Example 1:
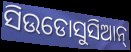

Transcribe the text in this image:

ସିଉଡୋସୁସିଆନ୍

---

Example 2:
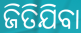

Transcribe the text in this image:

ଜିତିଯିବା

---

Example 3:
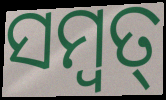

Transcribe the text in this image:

ସମ୍ବତ୍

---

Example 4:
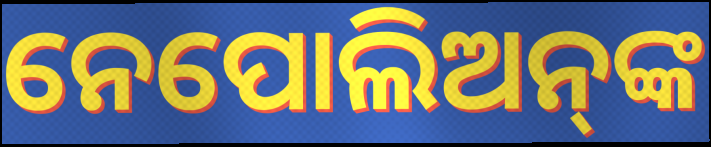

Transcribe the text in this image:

ନେପୋଲିଅନ୍‌ଙ୍କ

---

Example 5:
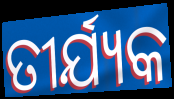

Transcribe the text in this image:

ତୀର୍ଯ୍ୟକ